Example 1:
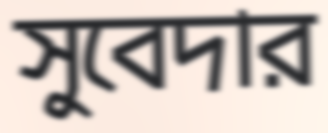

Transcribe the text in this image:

সুবেদার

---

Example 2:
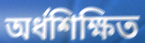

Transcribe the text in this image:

অর্ধশিক্ষিত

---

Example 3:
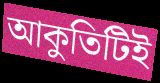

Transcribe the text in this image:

আকুতিটিই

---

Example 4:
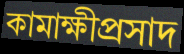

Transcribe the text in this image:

কামাক্ষীপ্রসাদ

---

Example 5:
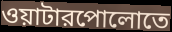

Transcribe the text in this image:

ওয়াটারপোলোতে